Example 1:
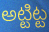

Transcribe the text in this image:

అట్టిట్ట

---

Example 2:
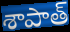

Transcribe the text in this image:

శాపాత్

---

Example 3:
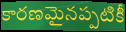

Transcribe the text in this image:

కారణమైనప్పటికీ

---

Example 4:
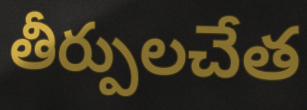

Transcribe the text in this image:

తీర్పులచేత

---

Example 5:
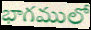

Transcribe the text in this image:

భాగములో